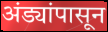
अंड्यांपासून